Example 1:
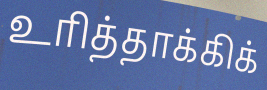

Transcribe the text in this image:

உரித்தாக்கிக்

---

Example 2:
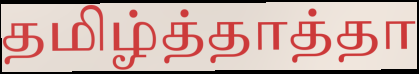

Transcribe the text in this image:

தமிழ்த்தாத்தா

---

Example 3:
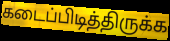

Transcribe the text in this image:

கடைப்பிடித்திருக்க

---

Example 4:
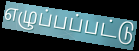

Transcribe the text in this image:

எழுப்பப்பட்டு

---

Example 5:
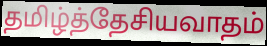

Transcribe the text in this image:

தமிழ்த்தேசியவாதம்